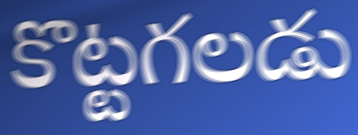
కొట్టగలడు